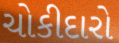
ચોકીદારો